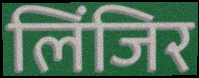
लिंजिर